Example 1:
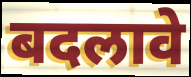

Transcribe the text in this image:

बदलावे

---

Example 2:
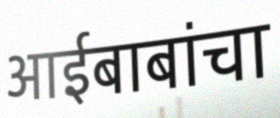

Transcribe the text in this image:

आईबाबांचा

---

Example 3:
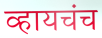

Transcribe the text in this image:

व्हायचंच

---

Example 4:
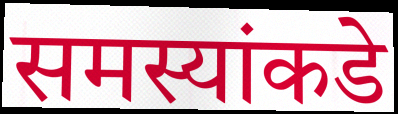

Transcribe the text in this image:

समस्यांकडे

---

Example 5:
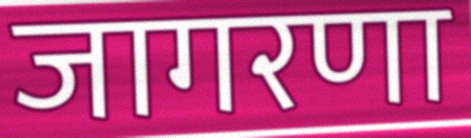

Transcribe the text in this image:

जागरणा